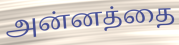
அன்னத்தை